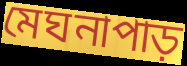
মেঘনাপাড়